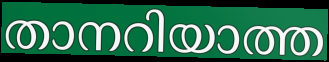
താനറിയാത്ത